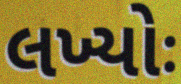
લખ્યોઃ